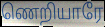
ணெறியாரே